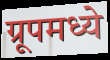
ग्रूपमध्ये